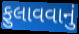
ફુલાવવાનું